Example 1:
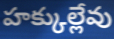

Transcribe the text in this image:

హక్కుల్లేవు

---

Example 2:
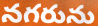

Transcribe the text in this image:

నగరును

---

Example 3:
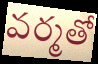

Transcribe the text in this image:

వర్మతో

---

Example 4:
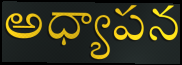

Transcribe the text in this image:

అధ్యాపన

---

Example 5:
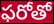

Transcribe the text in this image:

ఫరోతో